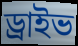
ড্রাইভ